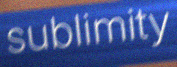
sublimity